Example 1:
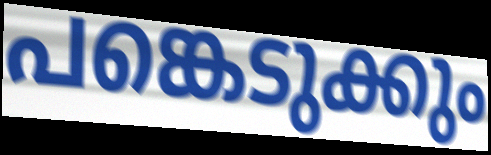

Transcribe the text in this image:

പങ്കെടുക്കും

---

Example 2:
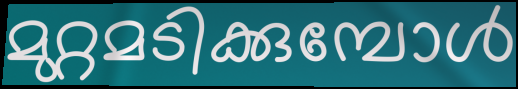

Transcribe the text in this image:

മുറ്റമടിക്കുമ്പോൾ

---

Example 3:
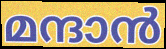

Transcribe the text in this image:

മന്ദാൻ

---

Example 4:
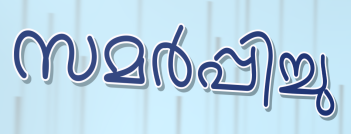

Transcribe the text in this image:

സമർപ്പിച്ചു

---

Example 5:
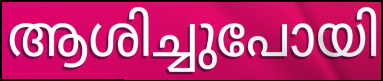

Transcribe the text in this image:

ആശിച്ചുപോയി